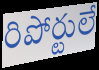
రిపోర్టులే